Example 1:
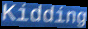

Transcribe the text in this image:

Kidding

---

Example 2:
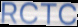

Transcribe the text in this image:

RCTC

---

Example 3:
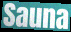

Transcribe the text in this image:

Sauna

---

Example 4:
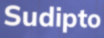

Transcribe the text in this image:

Sudipto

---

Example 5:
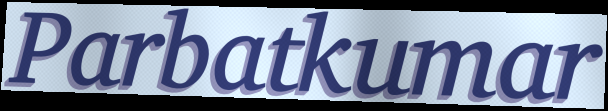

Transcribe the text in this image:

Parbatkumar